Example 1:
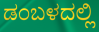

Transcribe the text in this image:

ಡಂಬಳದಲ್ಲಿ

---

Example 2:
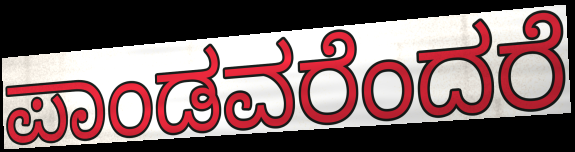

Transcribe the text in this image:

ಪಾಂಡವರೆಂದರೆ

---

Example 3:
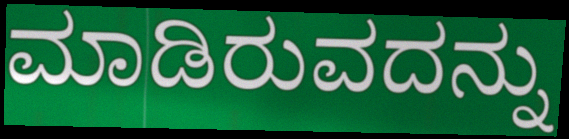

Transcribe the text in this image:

ಮಾಡಿರುವದನ್ನು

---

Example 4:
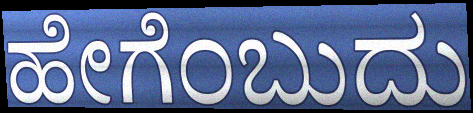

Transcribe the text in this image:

ಹೇಗೆಂಬುದು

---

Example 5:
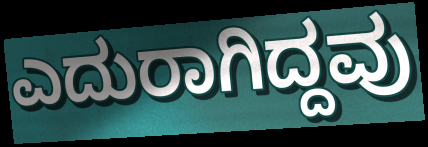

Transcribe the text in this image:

ಎದುರಾಗಿದ್ದವು